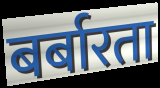
बर्बारता